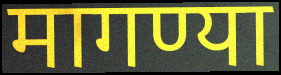
मागण्या